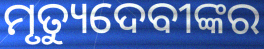
ମୃତ୍ୟୁଦେବୀଙ୍କର